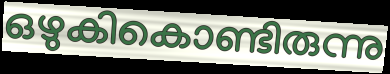
ഒഴുകികൊണ്ടിരുന്നു